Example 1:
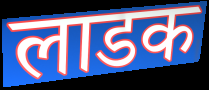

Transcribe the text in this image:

लाडक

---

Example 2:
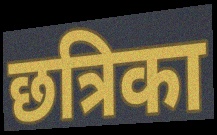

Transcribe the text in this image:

छत्रिका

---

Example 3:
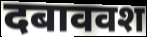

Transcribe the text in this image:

दबाववश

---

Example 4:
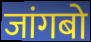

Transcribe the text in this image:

जांगबो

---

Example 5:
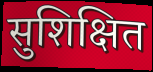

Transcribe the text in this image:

सुशिक्षित